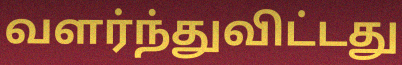
வளர்ந்துவிட்டது